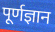
पूर्णज्ञान